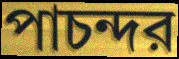
পাচন্দর